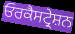
ਓਰਕੈਸਟ੍ਰੇਸ਼ਨ